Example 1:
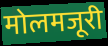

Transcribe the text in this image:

मोलमजूरी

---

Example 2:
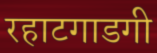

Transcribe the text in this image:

रहाटगाडगी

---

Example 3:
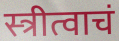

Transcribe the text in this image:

स्त्रीत्वाचं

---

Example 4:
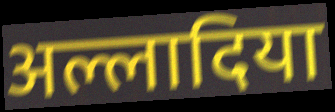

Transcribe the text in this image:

अल्लादिया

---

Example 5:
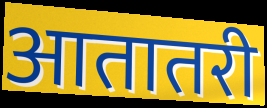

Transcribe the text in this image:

आतातरी